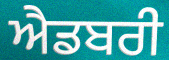
ਐਡਬਰੀ